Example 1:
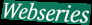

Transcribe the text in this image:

Webseries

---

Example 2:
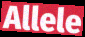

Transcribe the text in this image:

Allele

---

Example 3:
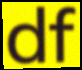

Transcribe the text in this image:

df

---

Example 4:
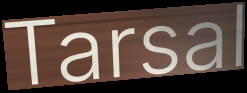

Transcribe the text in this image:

Tarsal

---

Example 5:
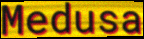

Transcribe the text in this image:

Medusa